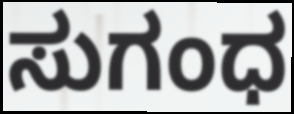
ಸುಗಂಧ